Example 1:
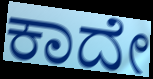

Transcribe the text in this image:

ಕಾದೇ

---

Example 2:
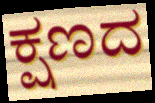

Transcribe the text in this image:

ಕ್ಷಣದ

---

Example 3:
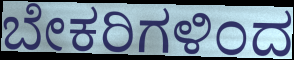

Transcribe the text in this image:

ಬೇಕರಿಗಳಿಂದ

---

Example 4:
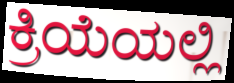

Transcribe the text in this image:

ಕ್ರಿಯೆಯಲ್ಲಿ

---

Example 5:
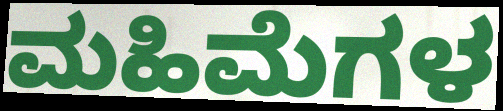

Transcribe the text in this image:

ಮಹಿಮೆಗಳ